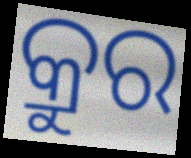
କ୍ରୁର